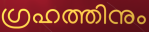
ഗ്രഹത്തിനും